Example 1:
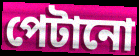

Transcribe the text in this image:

পেটানো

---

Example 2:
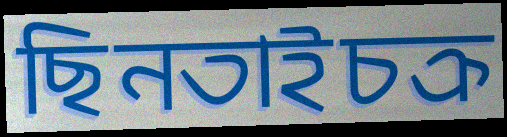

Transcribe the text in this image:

ছিনতাইচক্র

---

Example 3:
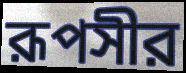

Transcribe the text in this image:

রূপসীর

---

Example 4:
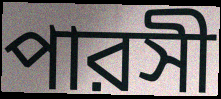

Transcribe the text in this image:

পারসী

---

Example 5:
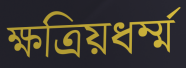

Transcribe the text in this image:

ক্ষত্রিয়ধর্ম্ম